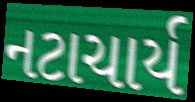
નટાચાર્ય